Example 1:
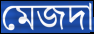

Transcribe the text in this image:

মেজদা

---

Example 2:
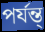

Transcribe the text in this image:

পর্যন্ত্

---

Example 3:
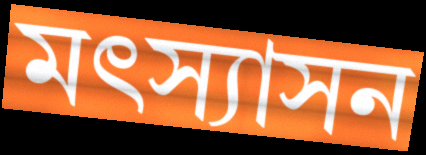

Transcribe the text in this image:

মৎস্যাসন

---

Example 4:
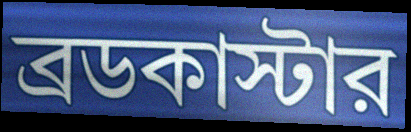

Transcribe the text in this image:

ব্রডকাস্টার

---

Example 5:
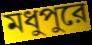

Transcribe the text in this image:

মধুপুরে